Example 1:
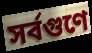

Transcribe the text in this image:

সর্বগুণে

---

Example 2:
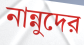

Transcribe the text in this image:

নান্নুদের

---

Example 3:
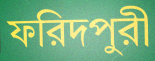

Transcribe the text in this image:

ফরিদপুরী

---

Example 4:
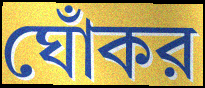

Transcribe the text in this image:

ঘোঁকর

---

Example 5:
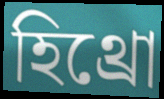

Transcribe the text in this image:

হিথ্রো